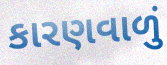
કારણવાળું